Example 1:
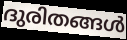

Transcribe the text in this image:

ദുരിതങ്ങൾ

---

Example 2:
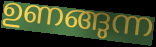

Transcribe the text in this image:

ഉണങ്ങുന്ന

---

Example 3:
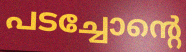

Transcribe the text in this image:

പടച്ചോന്റെ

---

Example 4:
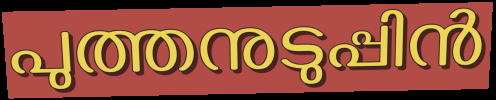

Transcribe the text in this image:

പുത്തനുടുപ്പിൻ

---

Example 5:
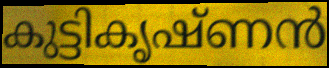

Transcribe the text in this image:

കുട്ടികൃഷ്ണൻ